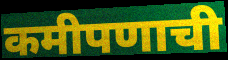
कमीपणाची